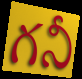
గనీ